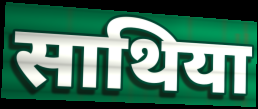
साथिया